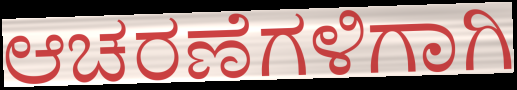
ಆಚರಣೆಗಳಿಗಾಗಿ